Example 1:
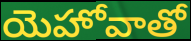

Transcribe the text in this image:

యెహోవాతో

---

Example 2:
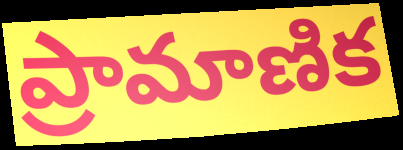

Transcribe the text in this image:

ప్రామాణిక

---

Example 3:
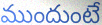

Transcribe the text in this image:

ముందుంటే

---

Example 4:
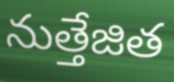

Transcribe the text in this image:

నుత్తేజిత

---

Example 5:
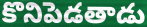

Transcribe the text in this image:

కొనిపెడతాడు